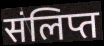
संलिप्त